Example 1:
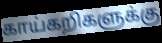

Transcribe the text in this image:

காய்கறிகளுக்கு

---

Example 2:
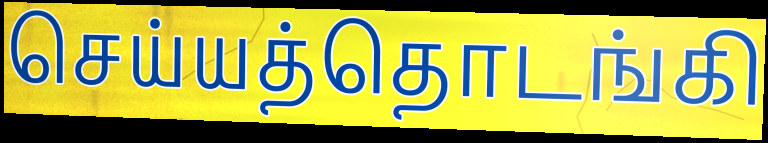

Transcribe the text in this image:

செய்யத்தொடங்கி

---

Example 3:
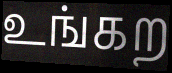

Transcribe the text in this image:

உங்கற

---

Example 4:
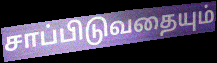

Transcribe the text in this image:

சாப்பிடுவதையும்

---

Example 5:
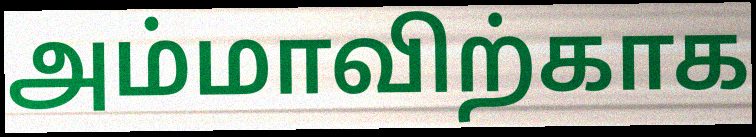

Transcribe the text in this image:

அம்மாவிற்காக